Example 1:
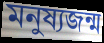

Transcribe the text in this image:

মনুষ্যজন্ম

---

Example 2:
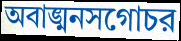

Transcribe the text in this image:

অবাঙ্মনসগোচর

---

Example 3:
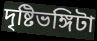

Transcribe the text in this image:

দৃষ্টিভঙ্গিটা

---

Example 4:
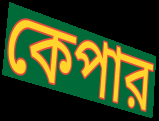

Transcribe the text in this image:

কেপার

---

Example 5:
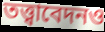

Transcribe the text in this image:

তত্ত্বাবেদনও